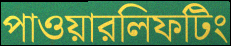
পাওয়ারলিফটিং